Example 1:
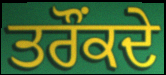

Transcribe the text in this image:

ਤਰੌਂਕਦੇ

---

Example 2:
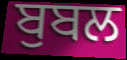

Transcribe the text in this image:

ਬੁਬਲ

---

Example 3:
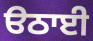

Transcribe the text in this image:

ੳਠਾਈ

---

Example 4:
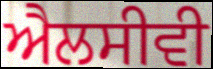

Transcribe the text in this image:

ਐਲਸੀਵੀ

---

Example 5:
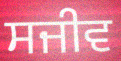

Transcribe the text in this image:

ਸਜੀਵ